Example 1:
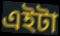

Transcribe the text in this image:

এইটা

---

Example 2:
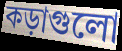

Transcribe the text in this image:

কড়াগুলো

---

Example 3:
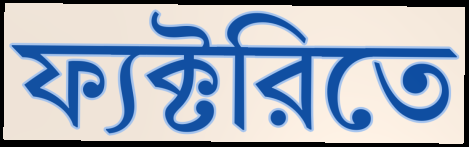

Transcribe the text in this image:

ফ্যক্টরিতে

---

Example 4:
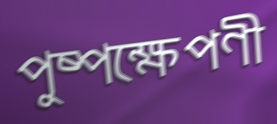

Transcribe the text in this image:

পুষ্পক্ষেপণী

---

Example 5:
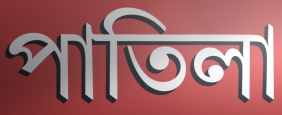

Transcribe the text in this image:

পাতিলা